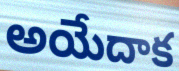
అయేదాక